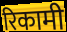
रिकामी